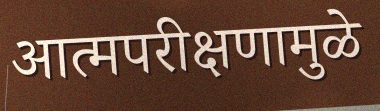
आत्मपरीक्षणामुळे